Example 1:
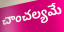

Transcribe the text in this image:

చాంచల్యమే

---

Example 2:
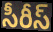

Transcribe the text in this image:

సీరీస్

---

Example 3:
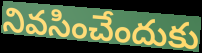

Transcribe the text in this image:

నివసించేందుకు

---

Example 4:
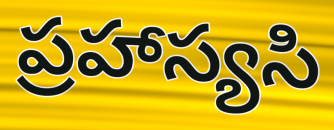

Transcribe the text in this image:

ప్రహాస్యసి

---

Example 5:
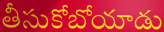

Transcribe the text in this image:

తీసుకోబోయాడు